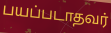
பயப்படாதவர்